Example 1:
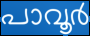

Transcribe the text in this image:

പാവൂർ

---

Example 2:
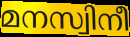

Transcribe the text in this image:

മനസ്വിനീ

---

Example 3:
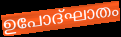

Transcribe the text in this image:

ഉപോദ്ഘാതം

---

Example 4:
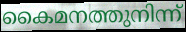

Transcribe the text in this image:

കൈമനത്തുനിന്ന്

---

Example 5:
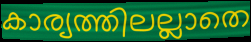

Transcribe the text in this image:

കാര്യത്തിലല്ലാതെ